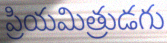
ప్రియమిత్రుడగు